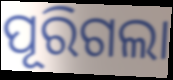
ପୂରିଗଲା